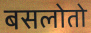
बसलोतो